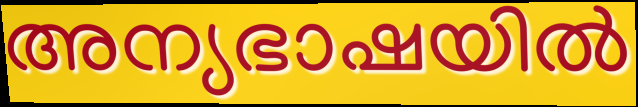
അന്യഭാഷയിൽ